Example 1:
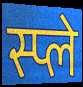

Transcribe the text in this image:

स्प्ले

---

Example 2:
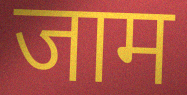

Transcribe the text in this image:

जाम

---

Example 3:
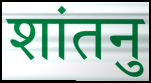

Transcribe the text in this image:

शांतनु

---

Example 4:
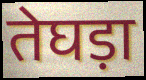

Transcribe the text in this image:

तेघड़ा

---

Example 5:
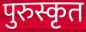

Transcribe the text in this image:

पुरुस्कृत